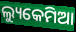
ଲ୍ୟୁକେମିଆ